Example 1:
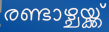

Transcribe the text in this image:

രണ്ടാഴ്ചയ്ക്ക്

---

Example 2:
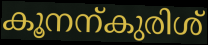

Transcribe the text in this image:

കൂനന്കുരിശ്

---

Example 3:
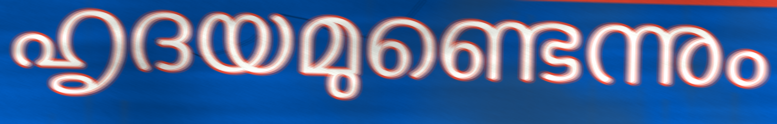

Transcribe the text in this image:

ഹൃദയമുണ്ടെന്നും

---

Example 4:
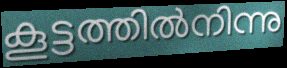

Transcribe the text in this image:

കൂട്ടത്തിൽനിന്നു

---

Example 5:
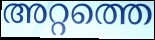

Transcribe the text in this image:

അറ്റത്തെ